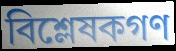
বিশ্লেষকগণ